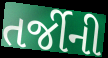
તર્જીની